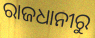
ରାଜଧାନୀରୁ